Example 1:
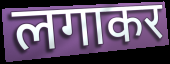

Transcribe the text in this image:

लगाकर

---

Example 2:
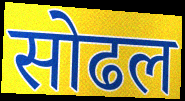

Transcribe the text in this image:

सोढल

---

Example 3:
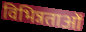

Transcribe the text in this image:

विभिन्नताओं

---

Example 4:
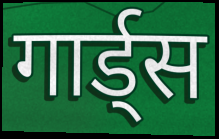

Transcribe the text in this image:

गार्ड्स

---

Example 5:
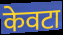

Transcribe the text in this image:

केवटा